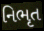
નિભૃત